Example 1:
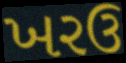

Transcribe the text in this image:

ખરઉ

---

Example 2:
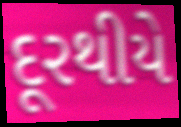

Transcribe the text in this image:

દૂરથીયે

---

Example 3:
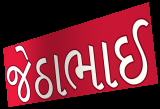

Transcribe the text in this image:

જેઠાભાઈ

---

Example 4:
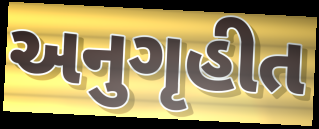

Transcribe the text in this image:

અનુગૃહીત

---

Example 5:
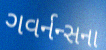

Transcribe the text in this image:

ગવર્નન્સના